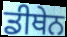
ਡੀਥੇਨ